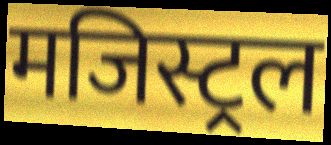
मजिस्ट्रल